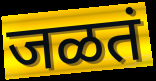
जळतं